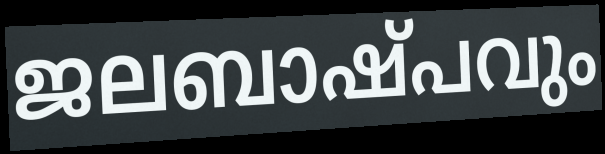
ജലബാഷ്പവും